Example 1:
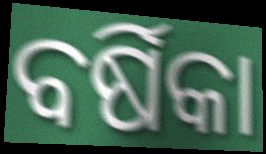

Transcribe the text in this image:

ବର୍ଷିକା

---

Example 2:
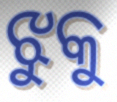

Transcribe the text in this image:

ଝୁକୁ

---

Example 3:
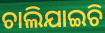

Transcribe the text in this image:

ଚାଲିଯାଇଚି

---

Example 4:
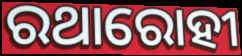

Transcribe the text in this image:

ରଥାରୋହୀ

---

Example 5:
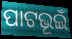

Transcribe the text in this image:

ପାଟଭୂଇଁ